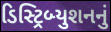
ડિસ્ટ્રિબ્યુશનનું